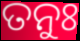
ତନୁଃ